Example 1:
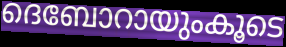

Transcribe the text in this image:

ദെബോറായുംകൂടെ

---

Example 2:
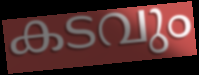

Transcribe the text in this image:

കടവും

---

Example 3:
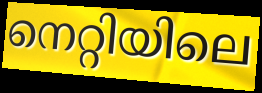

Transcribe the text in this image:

നെറ്റിയിലെ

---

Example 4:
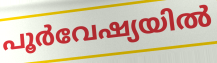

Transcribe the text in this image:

പൂർവേഷ്യയിൽ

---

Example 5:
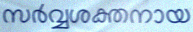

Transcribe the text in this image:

സർവ്വശക്തനായ